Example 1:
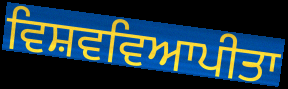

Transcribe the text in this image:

ਵਿਸ਼ਵਵਿਆਪੀਤਾ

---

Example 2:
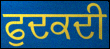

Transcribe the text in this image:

ਫੁਦਕਦੀ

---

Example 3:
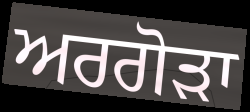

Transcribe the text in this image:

ਅਰਗੋੜਾ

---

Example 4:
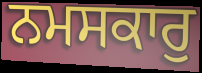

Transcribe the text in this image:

ਨਮਸਕਾਰੁ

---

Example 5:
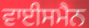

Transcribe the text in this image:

ਵਾਈਸਮੈਨ